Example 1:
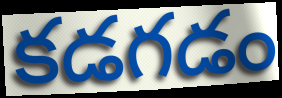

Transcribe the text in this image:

కడగడం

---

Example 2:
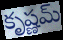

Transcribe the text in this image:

కృష్ణమ్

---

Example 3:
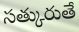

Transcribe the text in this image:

సత్కురుతే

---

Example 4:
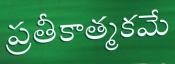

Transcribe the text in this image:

ప్రతీకాత్మకమే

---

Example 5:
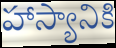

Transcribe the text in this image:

హాస్యానికి